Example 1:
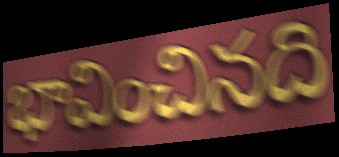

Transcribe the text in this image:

భావించినది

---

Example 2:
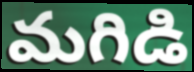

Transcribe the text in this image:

మగిడి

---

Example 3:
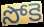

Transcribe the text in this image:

సోకె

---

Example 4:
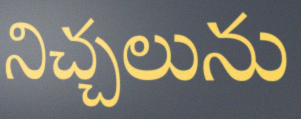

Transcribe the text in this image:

నిచ్చలును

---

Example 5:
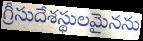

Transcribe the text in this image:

గ్రీసుదేశస్థులమైనను